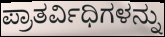
ಪ್ರಾತರ್ವಿಧಿಗಳನ್ನು